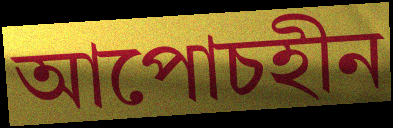
আপোচহীন